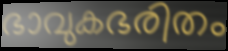
ഭാവുകഭരിതം